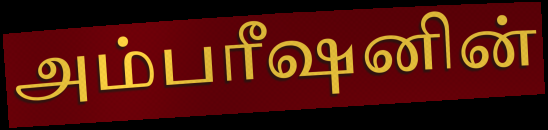
அம்பரீஷனின்